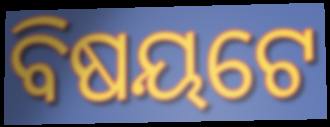
ବିଷୟଟେ